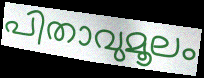
പിതാവുമൂലം